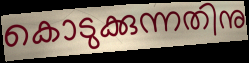
കൊടുക്കുന്നതിനു